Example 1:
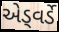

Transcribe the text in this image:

એડ્વર્ડે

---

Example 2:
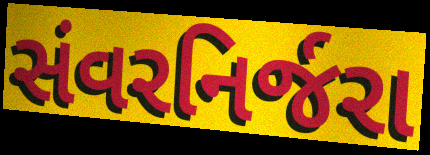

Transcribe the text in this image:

સંવરનિર્જરા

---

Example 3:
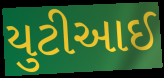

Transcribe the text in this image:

યુટીઆઈ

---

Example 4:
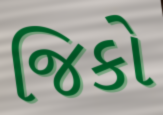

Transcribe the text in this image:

જિકો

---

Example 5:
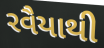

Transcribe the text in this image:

રવૈયાથી